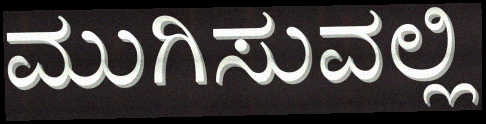
ಮುಗಿಸುವಲ್ಲಿ